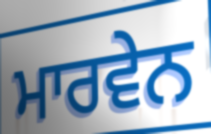
ਮਾਰਵੇਨ